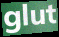
glut